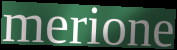
merione